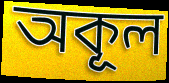
অকূল